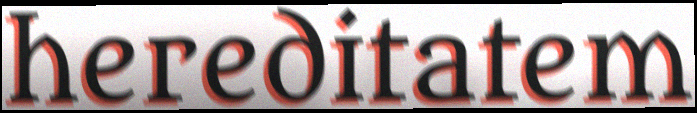
hereditatem